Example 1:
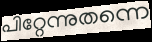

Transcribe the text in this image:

പിറ്റേന്നുതന്നെ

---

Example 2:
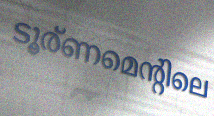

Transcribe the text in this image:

ടൂര്ണമെന്റിലെ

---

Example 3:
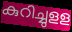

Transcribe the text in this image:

കുറിച്ചുളള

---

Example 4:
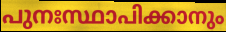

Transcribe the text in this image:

പുനഃസ്ഥാപിക്കാനും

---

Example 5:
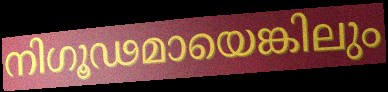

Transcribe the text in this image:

നിഗൂഢമായെങ്കിലും